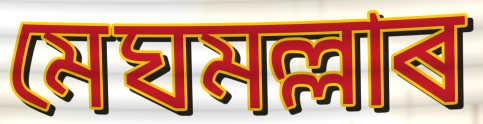
মেঘমল্লাৰ